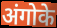
अंगोके